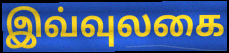
இவ்வுலகை